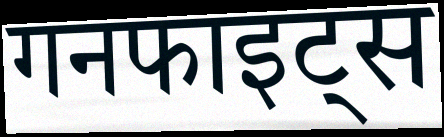
गनफाइट्स